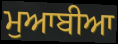
ਮੁਆਬੀਆ